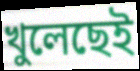
খুলেছেই